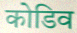
कोडिव